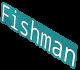
Fishman